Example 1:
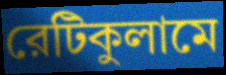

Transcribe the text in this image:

রেটিকুলামে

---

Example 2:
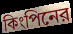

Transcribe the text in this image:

কিংপিনের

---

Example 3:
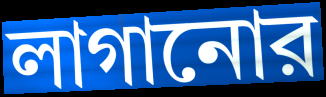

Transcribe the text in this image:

লাগানোর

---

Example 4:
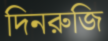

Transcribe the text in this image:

দিনরুজি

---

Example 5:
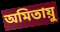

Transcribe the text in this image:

অমিতায়ু